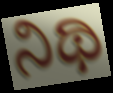
ನಿಥಿ